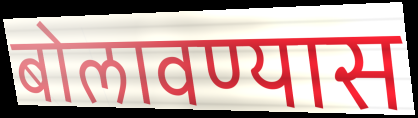
बोलावण्यास